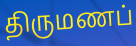
திருமணப்